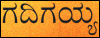
ಗದಿಗಯ್ಯ